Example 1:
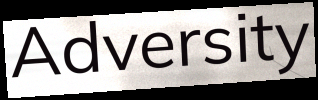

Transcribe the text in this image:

Adversity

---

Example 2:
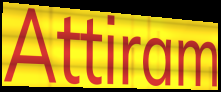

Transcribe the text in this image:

Attiram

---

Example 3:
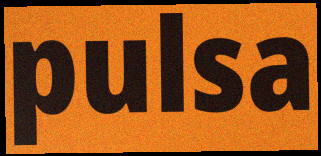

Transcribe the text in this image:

pulsa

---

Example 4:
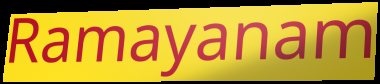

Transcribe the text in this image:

Ramayanam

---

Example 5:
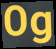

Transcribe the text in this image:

Og